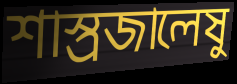
শাস্ত্রজালেষু